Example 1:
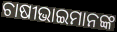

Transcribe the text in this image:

ଚାଷୀଭାଇମାନଙ୍କ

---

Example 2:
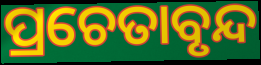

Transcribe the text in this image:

ପ୍ରଚେତାବୃନ୍ଦ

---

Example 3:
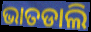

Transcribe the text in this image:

ଭାତଡାଲି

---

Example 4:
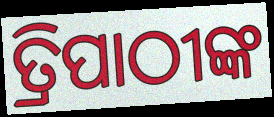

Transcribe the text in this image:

ତ୍ରିପାଠୀଙ୍କ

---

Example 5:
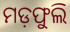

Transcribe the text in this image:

ମଡ଼ଫୁଲି